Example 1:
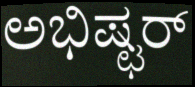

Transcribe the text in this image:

ಅಭಿಷ್ಟರ್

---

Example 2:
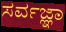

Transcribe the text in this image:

ಸರ್ವಜ್ಞಾ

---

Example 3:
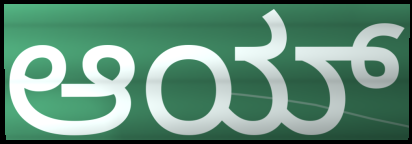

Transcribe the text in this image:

ಆಯ್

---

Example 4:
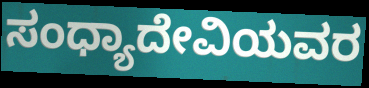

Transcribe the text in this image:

ಸಂಧ್ಯಾದೇವಿಯವರ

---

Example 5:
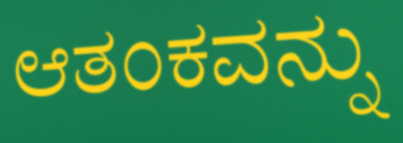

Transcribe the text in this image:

ಆತಂಕವನ್ನು